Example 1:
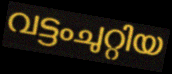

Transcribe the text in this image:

വട്ടംചുറ്റിയ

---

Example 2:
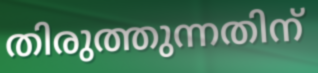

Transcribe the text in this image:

തിരുത്തുന്നതിന്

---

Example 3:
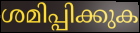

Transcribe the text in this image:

ശമിപ്പിക്കുക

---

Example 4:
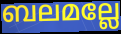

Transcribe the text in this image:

ബലമല്ലേ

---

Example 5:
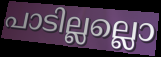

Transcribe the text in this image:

പാടില്ലല്ലൊ